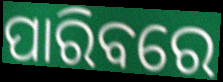
ପାରିବରେ